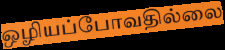
ஒழியப்போவதில்லை